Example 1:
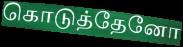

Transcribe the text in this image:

கொடுத்தேனோ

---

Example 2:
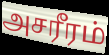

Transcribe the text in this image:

அசரீரம்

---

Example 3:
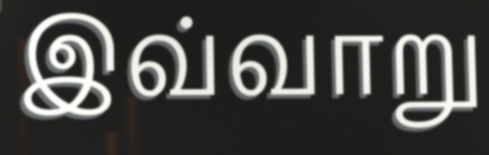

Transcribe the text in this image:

இவ்வாறு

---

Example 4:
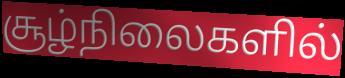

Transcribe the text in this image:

சூழ்நிலைகளில்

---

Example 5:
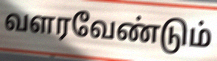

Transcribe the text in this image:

வளரவேண்டும்